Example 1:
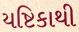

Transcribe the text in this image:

યષ્ટિકાથી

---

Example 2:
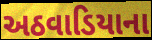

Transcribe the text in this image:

અઠવાડિયાના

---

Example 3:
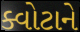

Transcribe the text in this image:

ક્વોટાને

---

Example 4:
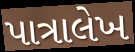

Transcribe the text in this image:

પાત્રાલેખ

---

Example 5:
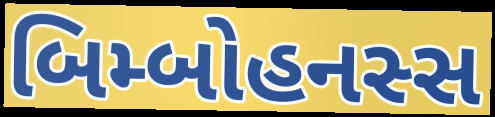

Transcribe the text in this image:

બિમ્બોહનસ્સ